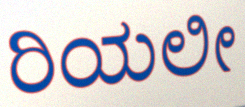
ರಿಯಲೀ